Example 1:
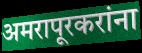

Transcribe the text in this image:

अमरापूरकरांना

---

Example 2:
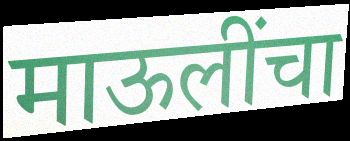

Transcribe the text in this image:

माऊलींचा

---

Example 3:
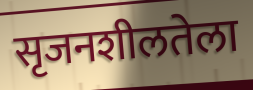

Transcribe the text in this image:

सृजनशीलतेला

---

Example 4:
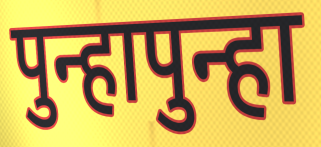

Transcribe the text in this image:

पुन्हापुन्हा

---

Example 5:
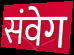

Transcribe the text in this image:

संवेग